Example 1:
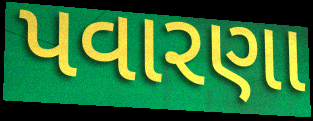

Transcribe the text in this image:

પવારણા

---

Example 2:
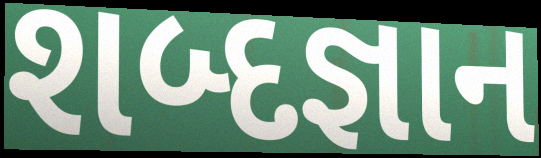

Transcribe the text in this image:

શબ્દજ્ઞાન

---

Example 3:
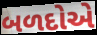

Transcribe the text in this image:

બળદોએ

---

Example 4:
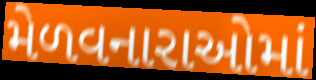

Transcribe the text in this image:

મેળવનારાઓમાં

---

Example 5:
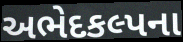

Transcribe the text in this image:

અભેદકલ્પના